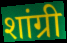
शांग्री